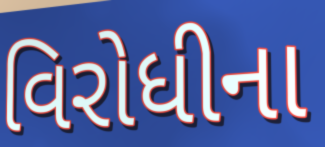
વિરોધીના